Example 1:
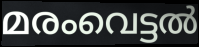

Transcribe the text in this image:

മരംവെട്ടൽ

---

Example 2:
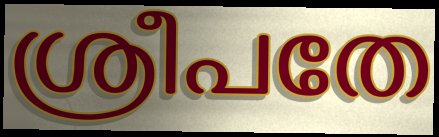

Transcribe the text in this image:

ശ്രീപതേ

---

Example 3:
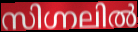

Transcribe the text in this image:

സിഗ്നലിൽ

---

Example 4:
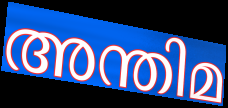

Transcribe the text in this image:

അന്തിമ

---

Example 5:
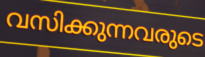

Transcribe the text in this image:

വസിക്കുന്നവരുടെ